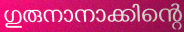
ഗുരുനാനാക്കിന്റെ